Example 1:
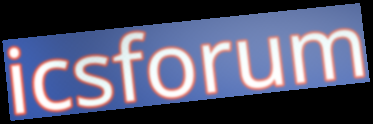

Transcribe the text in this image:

icsforum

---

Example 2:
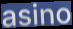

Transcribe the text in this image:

asino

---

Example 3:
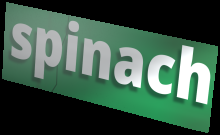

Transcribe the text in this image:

spinach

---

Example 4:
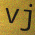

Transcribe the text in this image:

vj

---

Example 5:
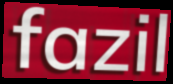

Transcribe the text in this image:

fazil